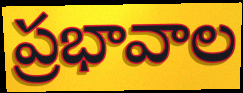
ప్రభావాల